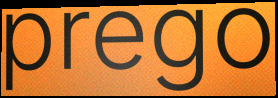
prego